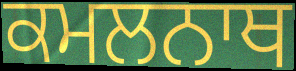
ਕਮਲਨਾਥ